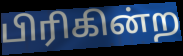
பிரிகின்ற